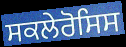
ਸਕਲੇਰੋਸਿਸ